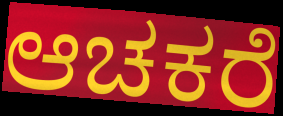
ಆಚಕರೆ